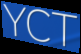
YCT